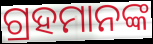
ଗ୍ରହମାନଙ୍କ